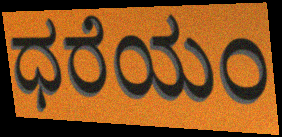
ಧರೆಯಂ